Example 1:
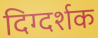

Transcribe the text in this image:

दिग्दर्शक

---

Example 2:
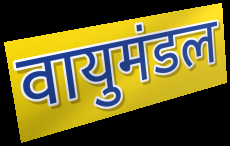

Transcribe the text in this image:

वायुमंडल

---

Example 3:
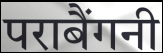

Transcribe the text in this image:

पराबैंगनी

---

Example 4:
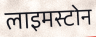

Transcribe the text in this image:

लाइमस्टोन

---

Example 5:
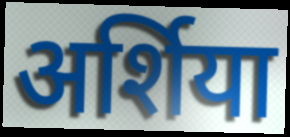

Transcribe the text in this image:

अर्शिया